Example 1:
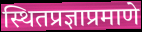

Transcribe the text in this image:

स्थितप्रज्ञाप्रमाणे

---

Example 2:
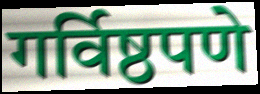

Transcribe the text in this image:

गर्विष्ठपणे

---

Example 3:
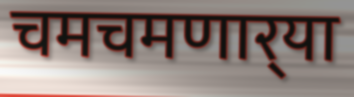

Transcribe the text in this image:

चमचमणार्‍या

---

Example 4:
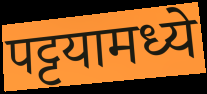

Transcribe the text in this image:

पट्टयामध्ये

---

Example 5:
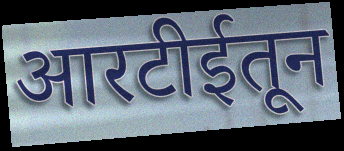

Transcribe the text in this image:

आरटीईतून